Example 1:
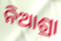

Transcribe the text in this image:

ନିଆଶ୍ରା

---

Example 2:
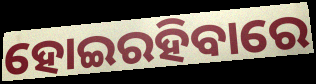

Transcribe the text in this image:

ହୋଇରହିବାରେ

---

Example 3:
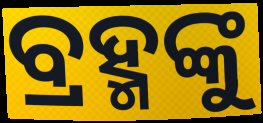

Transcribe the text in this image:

ବ୍ରହ୍ମଙ୍କୁ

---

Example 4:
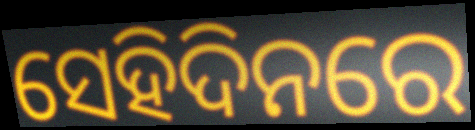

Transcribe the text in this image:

ସେହିଦିନରେ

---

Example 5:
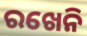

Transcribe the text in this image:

ରଖେନି